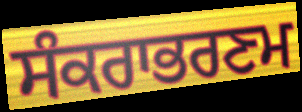
ਸੰਕਰਾਭਰਣਮ